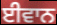
ਈਵਾਨ